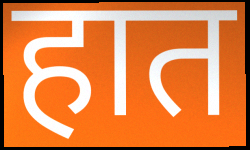
हात